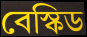
বেস্কিড